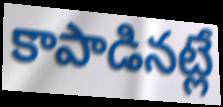
కాపాడినట్లే